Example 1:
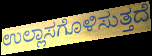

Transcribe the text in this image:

ಉಲ್ಲಾಸಗೊಳಿಸುತ್ತದೆ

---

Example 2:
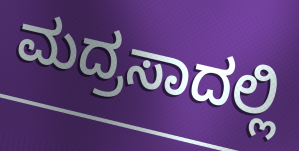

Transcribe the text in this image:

ಮದ್ರಸಾದಲ್ಲಿ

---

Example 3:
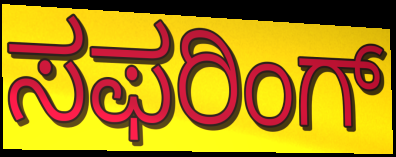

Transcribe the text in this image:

ಸಫರಿಂಗ್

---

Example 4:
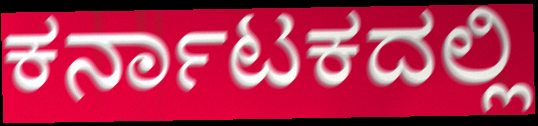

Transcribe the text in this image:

ಕರ್ನಾಟಕದಲ್ಲಿ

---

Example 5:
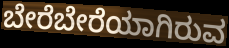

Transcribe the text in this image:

ಬೇರೆಬೇರೆಯಾಗಿರುವ